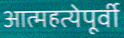
आत्महत्येपूर्वी